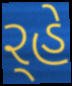
ર્‍હે